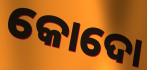
କୋଦୋ